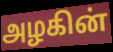
அழகின்